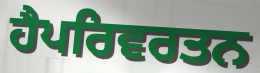
ਹੈਪਰਿਵਰਤਨ